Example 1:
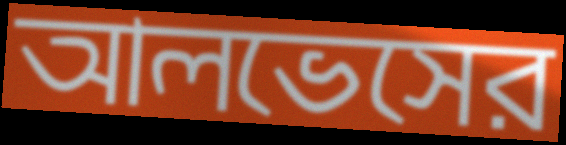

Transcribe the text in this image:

আলভেসের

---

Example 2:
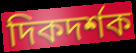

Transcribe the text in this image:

দিকদর্শক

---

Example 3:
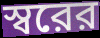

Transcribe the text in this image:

স্বরের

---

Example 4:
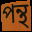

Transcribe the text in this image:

পন্থ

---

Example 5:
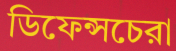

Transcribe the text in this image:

ডিফেন্সচেরা